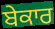
ਬੇਕਾਰ